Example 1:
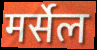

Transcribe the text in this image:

मर्सेल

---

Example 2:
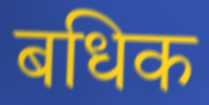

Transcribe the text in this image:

बधिक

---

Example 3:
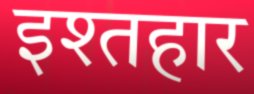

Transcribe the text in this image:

इश्तहार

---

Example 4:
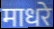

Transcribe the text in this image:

माधरे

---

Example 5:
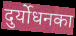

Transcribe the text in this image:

दुर्योधनका